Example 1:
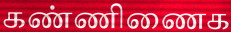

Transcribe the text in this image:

கண்ணிணைக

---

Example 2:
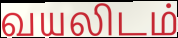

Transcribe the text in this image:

வயலிடம்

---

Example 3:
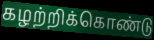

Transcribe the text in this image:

கழற்றிக்கொண்டு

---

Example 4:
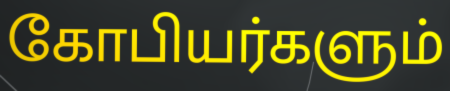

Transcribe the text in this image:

கோபியர்களும்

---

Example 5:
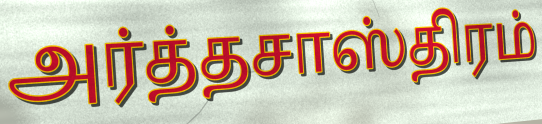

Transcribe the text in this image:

அர்த்தசாஸ்திரம்